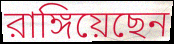
রাঙ্গিয়েছেন